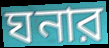
ঘনার